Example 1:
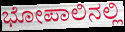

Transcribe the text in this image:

ಭೋಪಾಲಿನಲ್ಲಿ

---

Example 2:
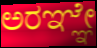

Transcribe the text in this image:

ಅರಞ್ಞೇ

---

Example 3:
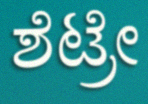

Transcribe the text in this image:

ಶೆಟ್ರೇ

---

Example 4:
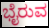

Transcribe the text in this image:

ಭೈರುವ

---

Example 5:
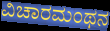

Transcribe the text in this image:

ವಿಚಾರಮಂಥನ